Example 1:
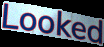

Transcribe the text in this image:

Looked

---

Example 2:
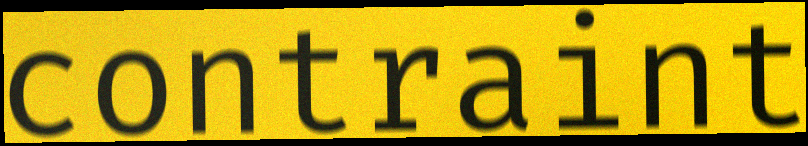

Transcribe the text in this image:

contraint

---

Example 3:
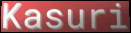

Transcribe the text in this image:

Kasuri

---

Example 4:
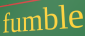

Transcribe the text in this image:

fumble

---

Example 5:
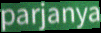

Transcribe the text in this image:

parjanya